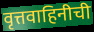
वृत्तवाहिनीची